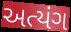
અત્યંગ